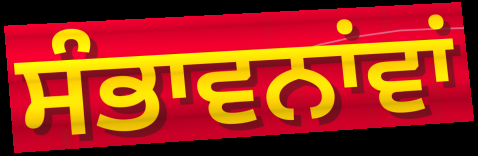
ਸੰਭਾਵਨਾਂਵਾਂ